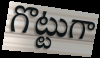
గొట్టుగా